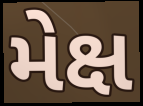
મેક્ષ